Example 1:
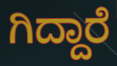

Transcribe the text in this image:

ಗಿದ್ದಾರೆ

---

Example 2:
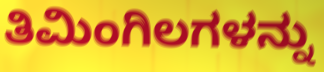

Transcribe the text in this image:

ತಿಮಿಂಗಿಲಗಳನ್ನು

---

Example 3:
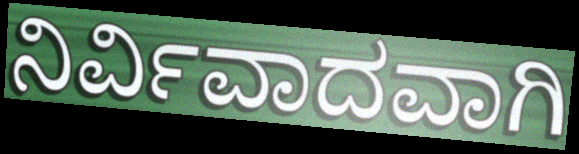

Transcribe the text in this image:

ನಿರ್ವಿವಾದವಾಗಿ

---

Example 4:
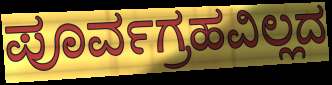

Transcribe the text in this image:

ಪೂರ್ವಗ್ರಹವಿಲ್ಲದ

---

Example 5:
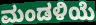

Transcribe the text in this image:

ಮಂಡಳಿಯೆ